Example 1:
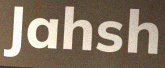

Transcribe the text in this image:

Jahsh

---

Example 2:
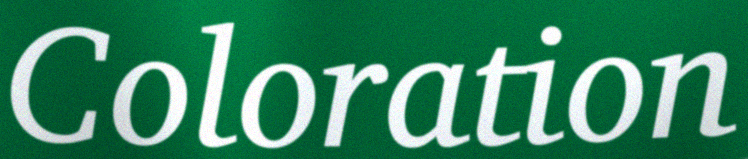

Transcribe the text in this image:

Coloration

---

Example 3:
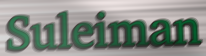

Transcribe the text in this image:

Suleiman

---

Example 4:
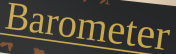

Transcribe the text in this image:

Barometer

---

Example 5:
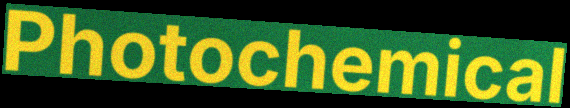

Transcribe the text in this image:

Photochemical